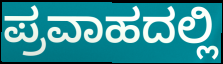
ಪ್ರವಾಹದಲ್ಲಿ